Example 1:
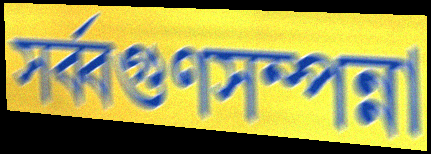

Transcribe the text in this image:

সর্ব্বগুণসম্পন্না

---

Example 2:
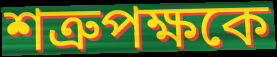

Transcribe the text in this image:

শত্রুপক্ষকে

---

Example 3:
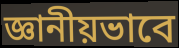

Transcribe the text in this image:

জ্ঞানীয়ভাবে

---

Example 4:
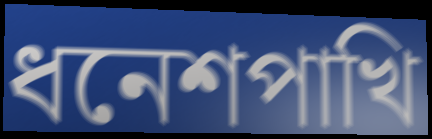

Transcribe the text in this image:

ধনেশপাখি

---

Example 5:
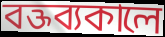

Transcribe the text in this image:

বক্তব্যকালে